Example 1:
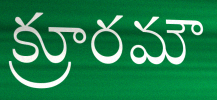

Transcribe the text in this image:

క్రూరమౌ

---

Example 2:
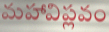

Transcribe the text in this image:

మహావిప్లవం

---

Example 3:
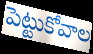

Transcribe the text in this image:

పెట్టుకోవాల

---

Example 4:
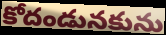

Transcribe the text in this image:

కోదండునకును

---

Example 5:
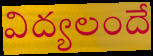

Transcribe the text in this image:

విద్యలందే